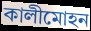
কালীমোহন